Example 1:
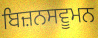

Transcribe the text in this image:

ਬਿਜ਼ਨਸਵੂਮਨ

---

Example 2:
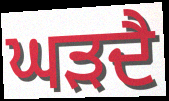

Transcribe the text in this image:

ਘੜਦੈ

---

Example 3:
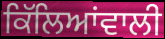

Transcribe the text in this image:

ਕਿੱਲਿਆਂਵਾਲੀ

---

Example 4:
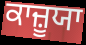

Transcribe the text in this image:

ਕਾਜ਼ੂਯਾ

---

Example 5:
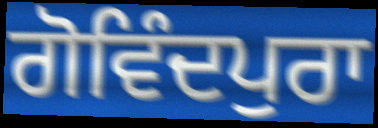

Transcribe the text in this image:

ਗੋਵਿੰਦਪੁਰਾ